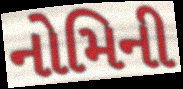
નોમિની